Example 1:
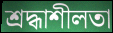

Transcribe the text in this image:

শ্রদ্ধাশীলতা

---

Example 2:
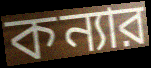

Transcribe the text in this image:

কন্যার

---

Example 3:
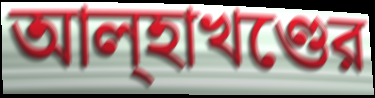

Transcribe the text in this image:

আল্হাখণ্ডের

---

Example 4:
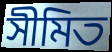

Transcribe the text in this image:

সীমিত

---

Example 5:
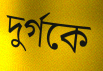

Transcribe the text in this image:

দুর্গকে